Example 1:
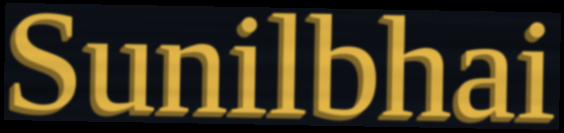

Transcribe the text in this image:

Sunilbhai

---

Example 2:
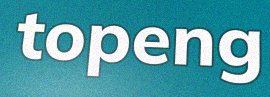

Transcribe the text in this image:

topeng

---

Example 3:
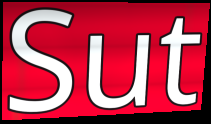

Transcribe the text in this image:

Sut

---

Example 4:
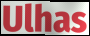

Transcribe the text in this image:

Ulhas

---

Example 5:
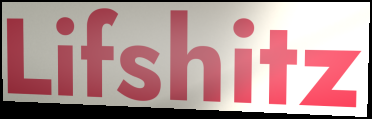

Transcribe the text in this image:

Lifshitz